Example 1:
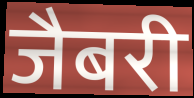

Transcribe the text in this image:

जैबरी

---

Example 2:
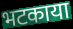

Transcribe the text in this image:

भटकाया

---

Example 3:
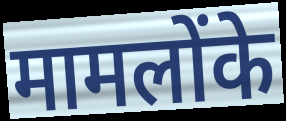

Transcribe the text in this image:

मामलोंके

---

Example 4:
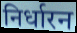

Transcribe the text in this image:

निर्धारन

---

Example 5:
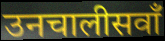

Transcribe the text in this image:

उनचालीसवाँ